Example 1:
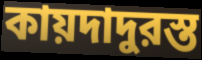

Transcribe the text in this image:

কায়দাদুরস্ত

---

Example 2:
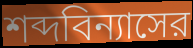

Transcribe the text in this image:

শব্দবিন্যাসের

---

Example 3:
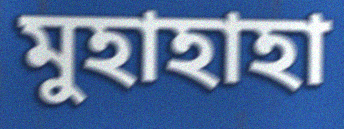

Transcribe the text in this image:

মুহাহাহা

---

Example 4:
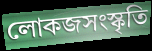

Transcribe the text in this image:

লোকজসংস্কৃতি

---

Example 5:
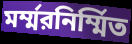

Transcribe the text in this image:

মর্ম্মরনির্ম্মিত